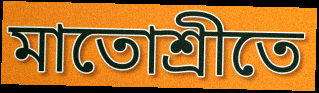
মাতোশ্রীতে